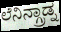
ಲೆನಿನ್ಗ್ರಾಡ್ನ